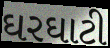
ઘરઘાટી